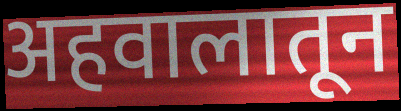
अहवालातून